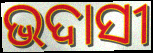
ଭଦାସୀ